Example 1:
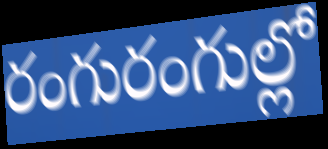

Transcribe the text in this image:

రంగురంగుల్లో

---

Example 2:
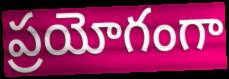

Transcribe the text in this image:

ప్రయోగంగా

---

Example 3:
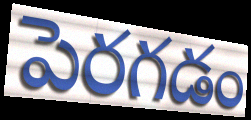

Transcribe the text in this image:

పెరగడం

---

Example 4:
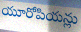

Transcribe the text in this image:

యూరోపియన్లు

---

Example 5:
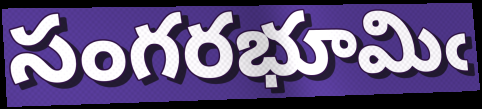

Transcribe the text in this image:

సంగరభూమిఁ